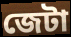
জেটা